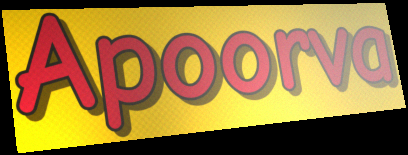
Apoorva